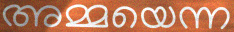
അമ്മയെന്ന